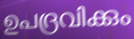
ഉപദ്രവിക്കും